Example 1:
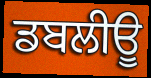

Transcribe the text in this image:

ਡਬਲੀਊ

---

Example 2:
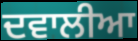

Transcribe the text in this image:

ਦਵਾਲੀਆ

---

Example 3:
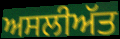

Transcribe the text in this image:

ਅਸਲੀਅੱਤ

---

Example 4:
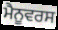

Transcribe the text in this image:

ਮੈਨੂਵਰਸ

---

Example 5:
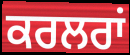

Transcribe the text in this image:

ਕਰਲਰਾਂ